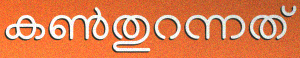
കൺതുറന്നത്